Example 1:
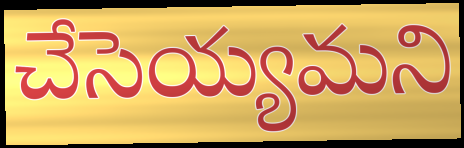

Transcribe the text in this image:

చేసెయ్యమని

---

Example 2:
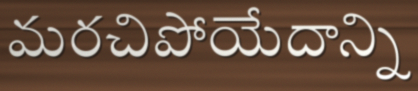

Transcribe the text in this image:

మరచిపోయేదాన్ని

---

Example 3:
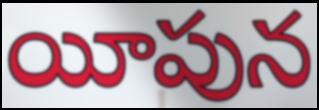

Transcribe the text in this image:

యీపున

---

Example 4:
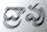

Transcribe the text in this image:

ద్రావు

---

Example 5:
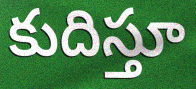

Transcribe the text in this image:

కుదిస్తూ